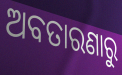
ଅବତାରଣାରୁ